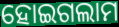
ହୋଇଗଲାମ